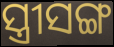
ସ୍ତ୍ରୀସଙ୍ଗ